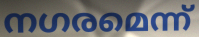
നഗരമെന്ന്